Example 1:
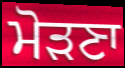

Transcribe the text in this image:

ਮੋੜਣਾ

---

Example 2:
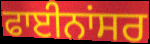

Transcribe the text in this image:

ਫਾਈਨਾਂਸਰ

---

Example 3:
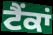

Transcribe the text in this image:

ਟੈਂਕਾਂ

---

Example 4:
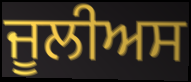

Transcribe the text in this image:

ਜੂਲੀਅਸ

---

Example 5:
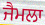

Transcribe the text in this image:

ਜੈਮਲਾ